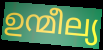
ഉന്മീല്യ